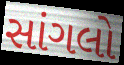
સાંગલો